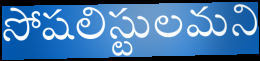
సోషలిస్టులమని